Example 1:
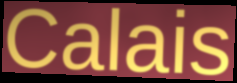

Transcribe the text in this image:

Calais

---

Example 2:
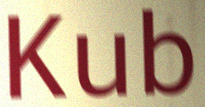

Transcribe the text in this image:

Kub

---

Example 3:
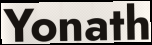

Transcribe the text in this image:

Yonath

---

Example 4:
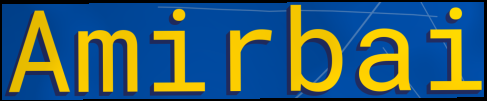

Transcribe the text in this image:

Amirbai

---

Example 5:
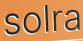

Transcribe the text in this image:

solra